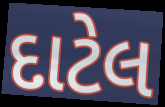
દાટેલ